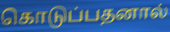
கொடுப்பதனால்